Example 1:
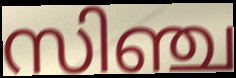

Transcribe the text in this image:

സിഞ്ച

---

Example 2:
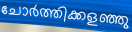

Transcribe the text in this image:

ചോർത്തിക്കളഞ്ഞു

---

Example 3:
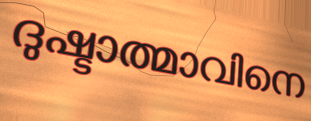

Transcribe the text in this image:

ദുഷ്ടാത്മാവിനെ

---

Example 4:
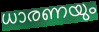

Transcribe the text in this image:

ധാരണയും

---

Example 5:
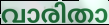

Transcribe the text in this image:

വാരിതാ